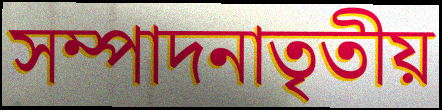
সম্পাদনাতৃতীয়